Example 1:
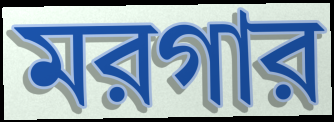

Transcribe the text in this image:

মরগার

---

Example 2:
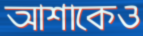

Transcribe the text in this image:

আশাকেও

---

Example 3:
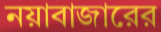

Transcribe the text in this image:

নয়াবাজারের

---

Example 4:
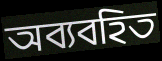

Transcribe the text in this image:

অব্যবহিত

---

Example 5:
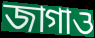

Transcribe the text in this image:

জাগাও